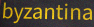
byzantina